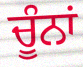
ਚੂੰਨਾਂ